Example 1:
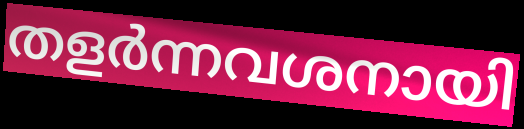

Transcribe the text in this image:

തളർന്നവശനായി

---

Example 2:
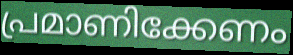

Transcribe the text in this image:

പ്രമാണിക്കേണം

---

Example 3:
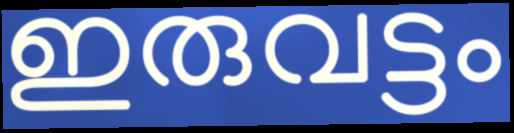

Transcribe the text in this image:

ഇരുവട്ടം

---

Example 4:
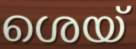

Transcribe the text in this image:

ശെയ്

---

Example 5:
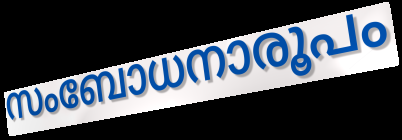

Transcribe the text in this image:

സംബോധനാരൂപം